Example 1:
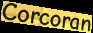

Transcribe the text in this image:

Corcoran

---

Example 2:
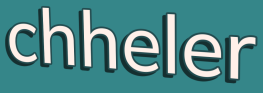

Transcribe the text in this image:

chheler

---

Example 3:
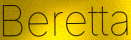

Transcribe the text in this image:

Beretta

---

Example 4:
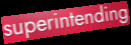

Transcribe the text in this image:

superintending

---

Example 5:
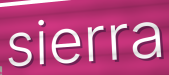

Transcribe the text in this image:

sierra